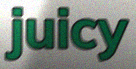
juicy